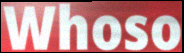
Whoso